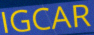
IGCAR